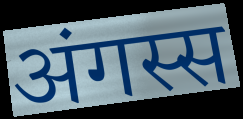
अंगस्स